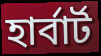
হাৰ্বাৰ্ট